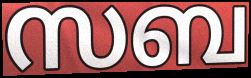
സബ